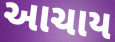
આચાય